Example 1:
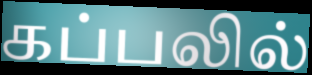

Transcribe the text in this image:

கப்பலில்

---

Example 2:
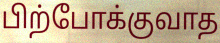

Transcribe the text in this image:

பிற்போக்குவாத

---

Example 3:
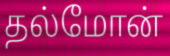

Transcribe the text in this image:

தல்மோன்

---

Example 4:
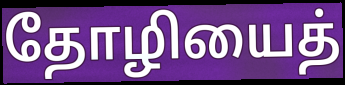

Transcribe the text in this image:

தோழியைத்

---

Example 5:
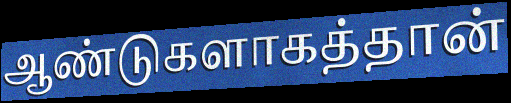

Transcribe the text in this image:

ஆண்டுகளாகத்தான்